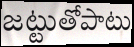
జట్టుతోపాటు